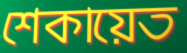
শেকায়েত